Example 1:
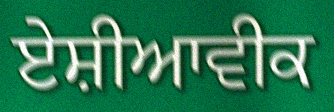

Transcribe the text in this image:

ਏਸ਼ੀਆਵੀਕ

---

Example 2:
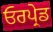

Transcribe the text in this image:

ਓਰਪ੍ਰੇਡ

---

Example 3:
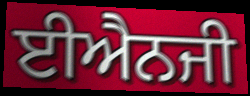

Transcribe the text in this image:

ਈਐਨਜੀ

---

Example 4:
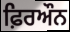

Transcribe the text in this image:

ਫ਼ਿਰਔਨ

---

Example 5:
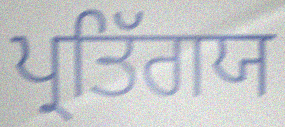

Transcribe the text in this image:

ਪ੍ਰਤਿੱਗਯ